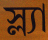
স্ল্যা